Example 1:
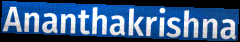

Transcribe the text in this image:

Ananthakrishna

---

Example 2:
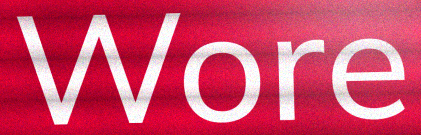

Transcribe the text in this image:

Wore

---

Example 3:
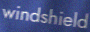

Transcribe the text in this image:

windshield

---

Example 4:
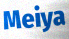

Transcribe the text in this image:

Meiya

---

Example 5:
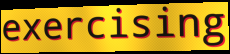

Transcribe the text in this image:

exercising